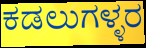
ಕಡಲುಗಳ್ಳರ